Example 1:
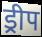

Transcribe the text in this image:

ड्रीप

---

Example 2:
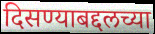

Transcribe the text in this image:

दिसण्याबद्दलच्या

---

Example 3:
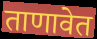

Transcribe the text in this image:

ताणावेत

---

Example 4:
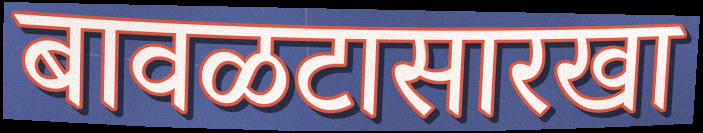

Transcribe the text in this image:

बावळटासारखा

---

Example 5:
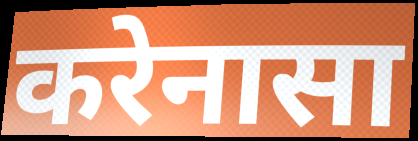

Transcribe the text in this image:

करेनासा